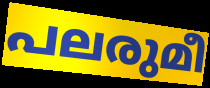
പലരുമീ